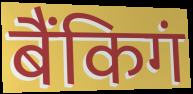
बैंकिगं